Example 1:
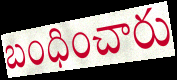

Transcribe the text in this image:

బంధించారు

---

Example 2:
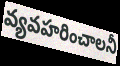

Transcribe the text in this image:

వ్యవహరించాలనీ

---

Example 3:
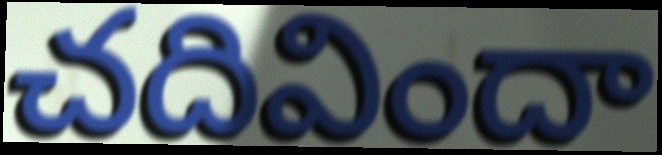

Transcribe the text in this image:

చదివిందా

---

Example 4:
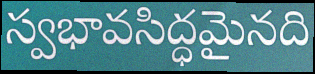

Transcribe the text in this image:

స్వభావసిద్ధమైనది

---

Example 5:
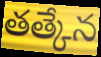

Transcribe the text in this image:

తత్కేన